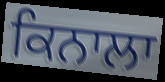
ਕਿਨਾਲਾ